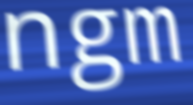
ngm